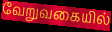
வேறுவகையில்